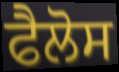
ਫੈਲੋਸ